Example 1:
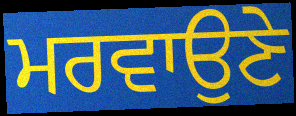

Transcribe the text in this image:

ਮਰਵਾਉਣੇ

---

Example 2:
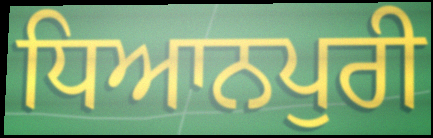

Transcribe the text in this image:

ਧਿਆਨਪੁਰੀ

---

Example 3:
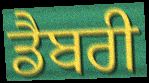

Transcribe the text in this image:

ਡੈਬਰੀ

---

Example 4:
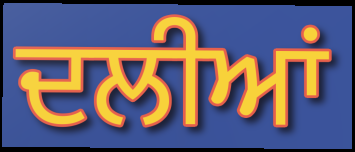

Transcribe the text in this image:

ਦਲੀਆਂ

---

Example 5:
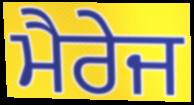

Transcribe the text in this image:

ਮੈਰੇਜ